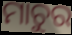
ମାଚୁର